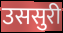
उससुरी